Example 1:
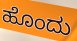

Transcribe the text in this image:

ಹೊಂದು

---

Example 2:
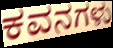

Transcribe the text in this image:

ಕವನಗಳು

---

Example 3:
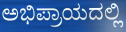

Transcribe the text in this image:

ಅಭಿಪ್ರಾಯದಲ್ಲಿ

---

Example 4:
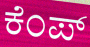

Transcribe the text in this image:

ಕೆಂಪ್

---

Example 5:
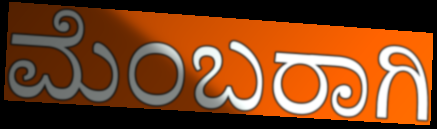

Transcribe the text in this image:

ಮೆಂಬರಾಗಿ